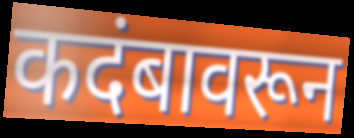
कदंबावरून